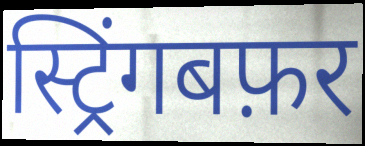
स्ट्रिंगबफ़र